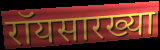
रॉयसारख्या